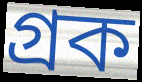
গ্রক